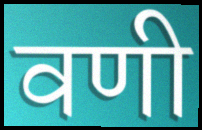
वणी